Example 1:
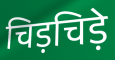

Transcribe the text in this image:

चिड़चिड़े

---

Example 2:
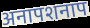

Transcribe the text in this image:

अनापशनाप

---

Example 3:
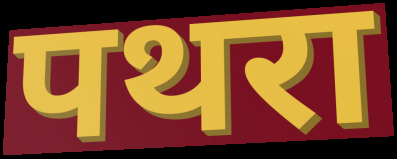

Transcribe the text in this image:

पथरा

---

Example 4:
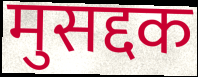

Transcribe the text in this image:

मुसद्दक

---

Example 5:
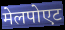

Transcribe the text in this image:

मेलपोएट